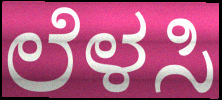
ಲೆಳಸಿ